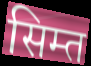
सिम्त